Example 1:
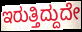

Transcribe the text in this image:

ಇರುತ್ತಿದ್ದುದೇ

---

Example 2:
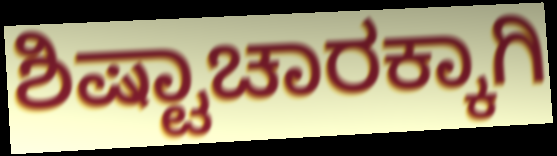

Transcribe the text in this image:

ಶಿಷ್ಟಾಚಾರಕ್ಕಾಗಿ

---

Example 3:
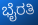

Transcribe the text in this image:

ಭೈರತಿ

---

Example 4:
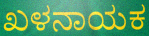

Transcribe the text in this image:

ಖಳನಾಯಕ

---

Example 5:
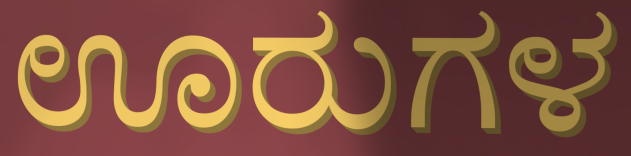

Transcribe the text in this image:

ಊರುಗಳ